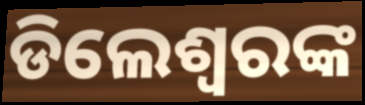
ଡିଲେଶ୍ଵରଙ୍କ